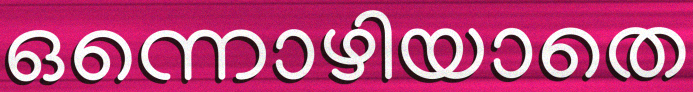
ഒന്നൊഴിയാതെ